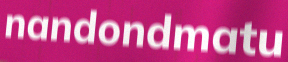
nandondmatu